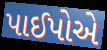
પાઈપોએ